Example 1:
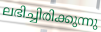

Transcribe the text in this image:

ലഭിച്ചിരിക്കുന്നു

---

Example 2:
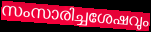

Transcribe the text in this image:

സംസാരിച്ചശേഷവും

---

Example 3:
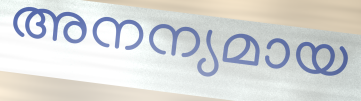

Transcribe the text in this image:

അനന്യമായ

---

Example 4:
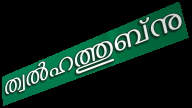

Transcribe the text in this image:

ത്വൽഹത്തുബ്നു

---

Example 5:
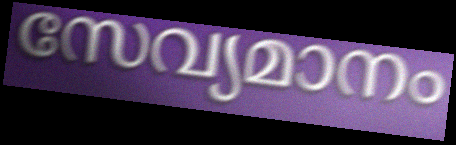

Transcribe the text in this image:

സേവ്യമാനം